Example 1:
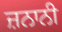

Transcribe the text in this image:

ਜ਼ਨਾਨੀ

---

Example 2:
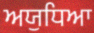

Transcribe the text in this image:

ਅਯੁਧਿਆ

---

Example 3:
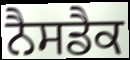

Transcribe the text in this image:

ਨੈਸਡੈਕ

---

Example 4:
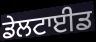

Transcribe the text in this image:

ਡੇਲਟਾਈਡ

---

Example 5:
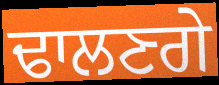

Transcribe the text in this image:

ਢਾਲਣਗੇ